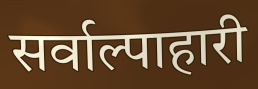
सर्वाल्पाहारी